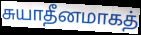
சுயாதீனமாகத்